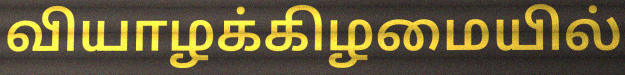
வியாழக்கிழமையில்